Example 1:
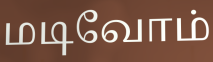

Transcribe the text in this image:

மடிவோம்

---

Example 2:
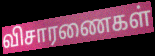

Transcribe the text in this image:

விசாரணைகள்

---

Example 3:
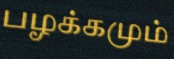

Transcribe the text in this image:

பழக்கமும்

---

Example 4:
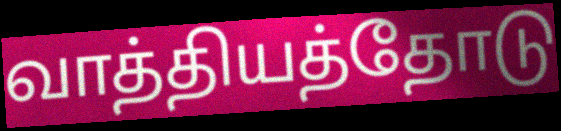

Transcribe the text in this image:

வாத்தியத்தோடு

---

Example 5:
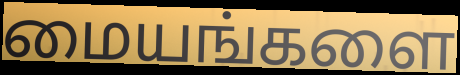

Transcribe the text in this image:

மையங்களை